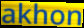
akhon